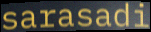
sarasadi